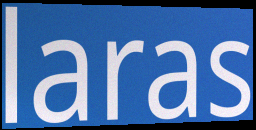
laras